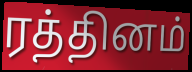
ரத்தினம்